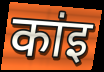
कांइ